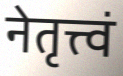
नेतृत्त्वं